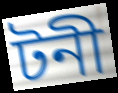
টনী